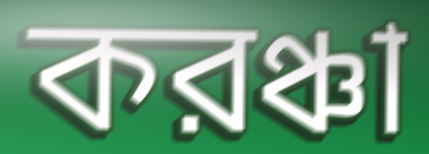
করঞ্চা